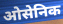
ओसेनिक